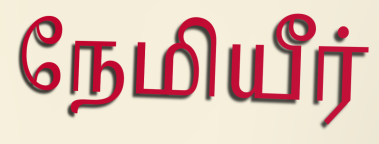
நேமியீர்